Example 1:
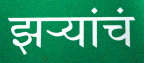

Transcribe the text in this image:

झर्‍यांचं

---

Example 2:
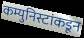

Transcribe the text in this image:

कम्युनिस्टांकडून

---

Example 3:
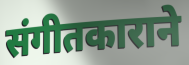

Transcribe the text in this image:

संगीतकाराने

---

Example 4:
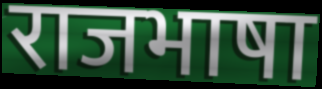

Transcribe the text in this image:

राजभाषा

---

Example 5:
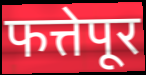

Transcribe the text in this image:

फत्तेपूर